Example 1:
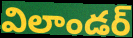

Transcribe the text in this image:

విలాండర్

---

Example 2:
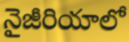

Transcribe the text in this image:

నైజీరియాలో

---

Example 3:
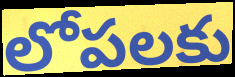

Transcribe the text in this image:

లోపలకు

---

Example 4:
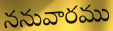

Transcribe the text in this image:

ననువారము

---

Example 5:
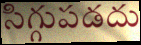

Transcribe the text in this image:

సిగ్గుపడదు